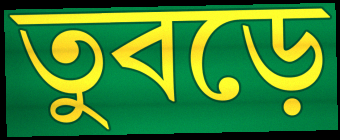
তুবড়ে